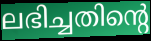
ലഭിച്ചതിന്റെ